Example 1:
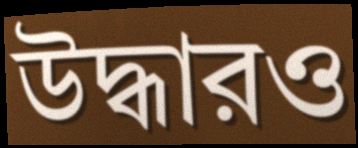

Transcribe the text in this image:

উদ্ধারও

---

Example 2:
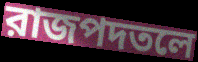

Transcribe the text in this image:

রাজপদতলে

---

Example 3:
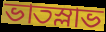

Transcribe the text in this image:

ভাতস্লাভ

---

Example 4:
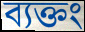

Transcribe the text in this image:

ব্যক্তং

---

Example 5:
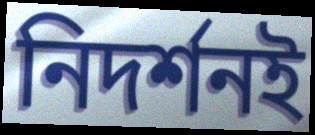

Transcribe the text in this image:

নিদর্শনই